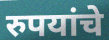
रुपयांचे